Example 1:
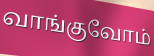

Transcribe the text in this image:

வாங்குவோம்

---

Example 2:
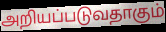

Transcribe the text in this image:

அறியப்படுவதாகும்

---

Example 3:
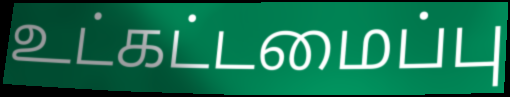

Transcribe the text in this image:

உட்கட்டமைப்பு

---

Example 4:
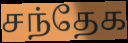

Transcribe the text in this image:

சந்தேக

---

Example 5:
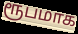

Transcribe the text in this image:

ரூபமாக